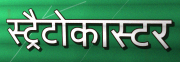
स्ट्रैटोकास्टर